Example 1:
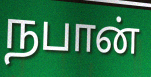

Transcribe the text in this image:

நபான்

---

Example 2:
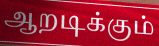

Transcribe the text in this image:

ஆறடிக்கும்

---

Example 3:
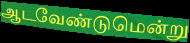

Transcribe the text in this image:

ஆடவேண்டுமென்று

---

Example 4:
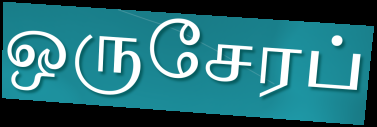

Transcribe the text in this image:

ஒருசேரப்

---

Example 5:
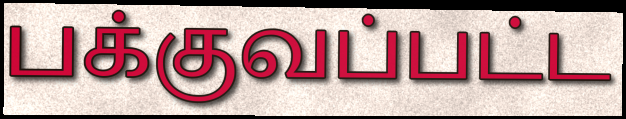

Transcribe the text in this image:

பக்குவப்பட்ட